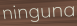
ninguna